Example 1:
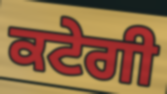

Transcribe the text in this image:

ਕਟੇਗੀ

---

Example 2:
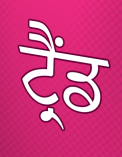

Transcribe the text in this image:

ਟ੍ਰੈਂਡ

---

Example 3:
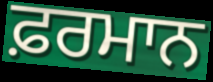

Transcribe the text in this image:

ਫ਼ਰਮਾਨ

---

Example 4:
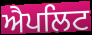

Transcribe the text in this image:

ਐਪਲਿਟ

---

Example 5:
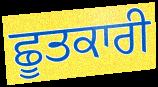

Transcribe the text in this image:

ਛੂਤਕਾਰੀ